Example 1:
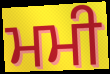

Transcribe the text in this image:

ਮਮੀ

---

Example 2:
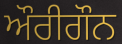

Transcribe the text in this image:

ਔਰੀਗੌਨ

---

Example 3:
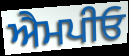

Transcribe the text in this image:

ਐਮਪੀਓ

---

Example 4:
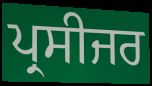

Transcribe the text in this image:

ਪ੍ਰਸੀਜਰ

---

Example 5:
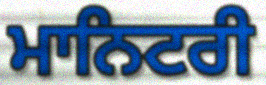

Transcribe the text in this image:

ਮਾਨਿਟਰੀ